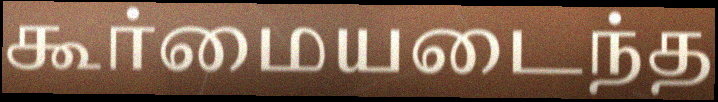
கூர்மையடைந்த